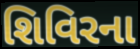
શિવિરના